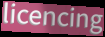
licencing